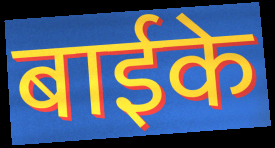
बाईके